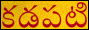
కడపటి